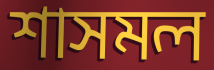
শাসমল